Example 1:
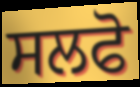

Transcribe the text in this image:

ਸਲਫੋ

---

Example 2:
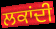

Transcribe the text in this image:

ਲਕਾਂਦੀ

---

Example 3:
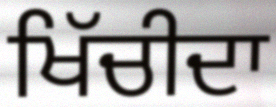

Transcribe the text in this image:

ਖਿੱਚੀਦਾ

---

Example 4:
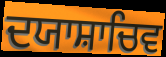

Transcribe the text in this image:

ਦਯਾਸ਼ਾਚਿਵ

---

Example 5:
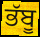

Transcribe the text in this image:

ਭੱਬੂ